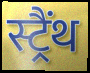
स्ट्रैंथ